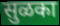
सुळका